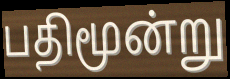
பதிமூன்று